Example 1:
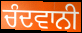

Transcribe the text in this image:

ਚੰਦਵਾਨੀ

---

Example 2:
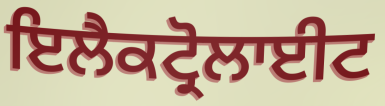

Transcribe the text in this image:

ਇਲੈਕਟ੍ਰੋਲਾਈਟ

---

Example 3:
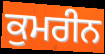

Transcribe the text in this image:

ਕੁਮਰੀਨ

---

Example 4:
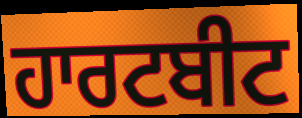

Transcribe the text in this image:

ਹਾਰਟਬੀਟ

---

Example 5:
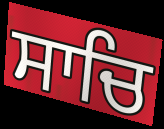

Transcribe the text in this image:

ਸਾਚਿ